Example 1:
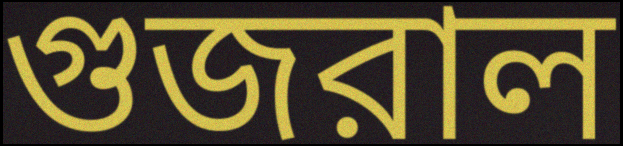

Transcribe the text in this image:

গুজরাল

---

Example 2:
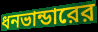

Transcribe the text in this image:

ধনভান্ডারের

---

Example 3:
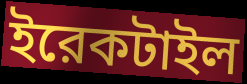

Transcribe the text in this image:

ইরেকটাইল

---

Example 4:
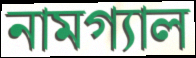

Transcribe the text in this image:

নামগ্যাল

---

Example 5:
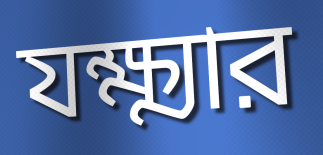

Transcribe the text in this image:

যক্ষ্মার